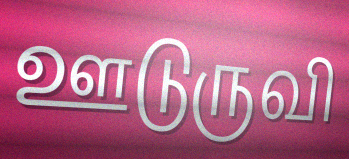
ஊடுருவி